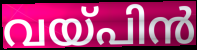
വയ്പിൻ